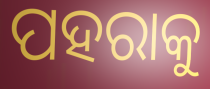
ପହରାକୁ